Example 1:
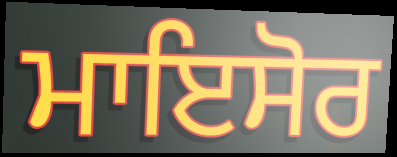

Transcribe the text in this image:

ਮਾਇਸੋਰ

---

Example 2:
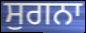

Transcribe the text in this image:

ਸੁਗਨਾ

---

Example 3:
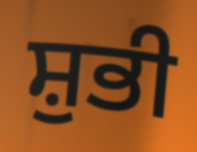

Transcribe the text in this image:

ਸ਼ੁਭੀ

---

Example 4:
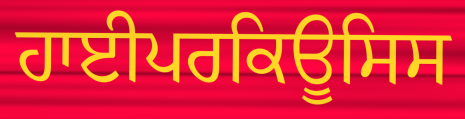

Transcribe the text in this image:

ਹਾਈਪਰਕਿਊਸਿਸ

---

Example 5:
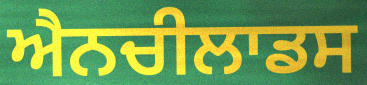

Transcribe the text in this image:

ਐਨਚੀਲਾਡਸ